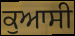
ਕੁਆਸੀ